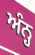
ਅੰਨ੍ਹ